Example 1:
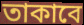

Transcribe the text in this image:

তাকাবে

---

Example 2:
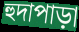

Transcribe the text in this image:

হুদাপাড়া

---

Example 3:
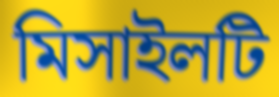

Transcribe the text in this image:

মিসাইলটি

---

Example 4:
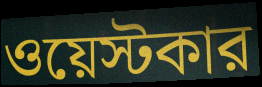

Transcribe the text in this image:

ওয়েস্টকার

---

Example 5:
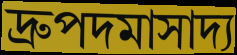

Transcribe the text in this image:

দ্রুপদমাসাদ্য